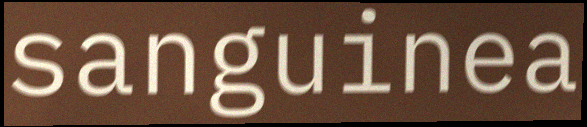
sanguinea